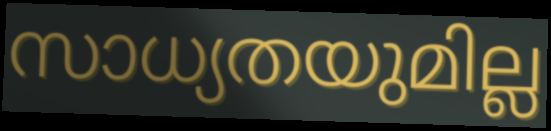
സാധ്യതയുമില്ല